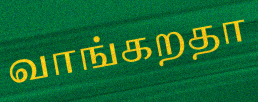
வாங்கறதா